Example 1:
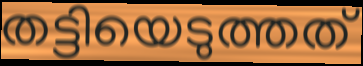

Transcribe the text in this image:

തട്ടിയെടുത്തത്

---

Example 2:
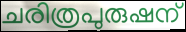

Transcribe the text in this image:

ചരിത്രപുരുഷന്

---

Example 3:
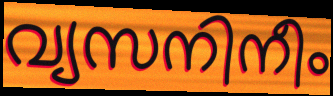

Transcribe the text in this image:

വ്യസനിനീം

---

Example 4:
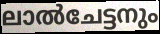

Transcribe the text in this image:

ലാൽചേട്ടനും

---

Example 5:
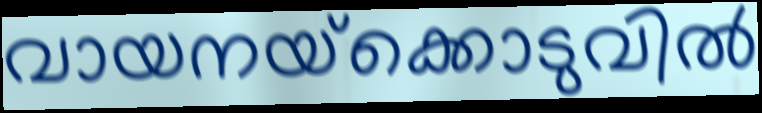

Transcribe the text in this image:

വായനയ്‌ക്കൊടുവിൽ